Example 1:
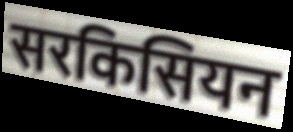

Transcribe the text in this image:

सरकिसियन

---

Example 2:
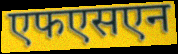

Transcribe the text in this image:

एफएसएन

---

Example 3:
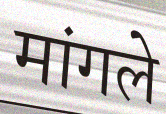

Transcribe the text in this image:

मांगले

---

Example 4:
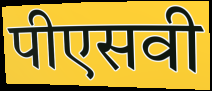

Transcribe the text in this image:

पीएसवी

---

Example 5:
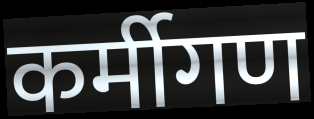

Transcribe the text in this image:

कर्मीगण